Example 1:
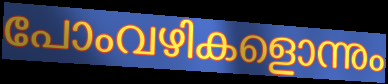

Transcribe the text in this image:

പോംവഴികളൊന്നും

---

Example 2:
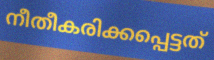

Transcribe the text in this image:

നീതീകരിക്കപ്പെട്ടത്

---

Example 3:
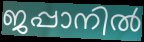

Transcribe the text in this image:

ജപ്പാനിൽ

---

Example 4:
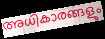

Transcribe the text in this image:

അധികാരങ്ങളും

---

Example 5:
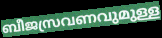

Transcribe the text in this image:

ബീജസ്രവണവുമുള്ള